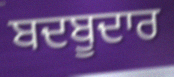
ਬਦਬੂਦਾਰ